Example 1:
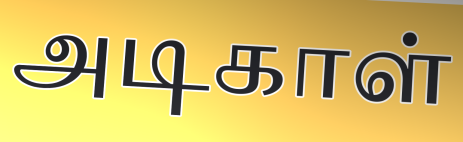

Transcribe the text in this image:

அடிகாள்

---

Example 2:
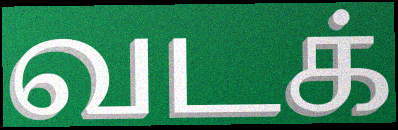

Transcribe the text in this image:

வடக்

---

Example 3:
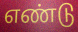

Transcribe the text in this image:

எண்டு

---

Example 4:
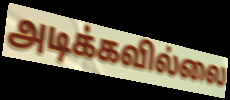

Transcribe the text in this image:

அடிக்கவில்லை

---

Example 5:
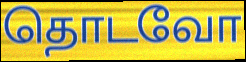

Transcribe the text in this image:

தொடவோ